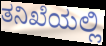
ತನಿಖೆಯಲ್ಲಿ